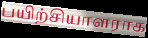
பயிற்சியாளராக